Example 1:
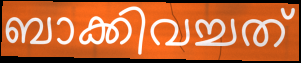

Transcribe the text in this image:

ബാക്കിവച്ചത്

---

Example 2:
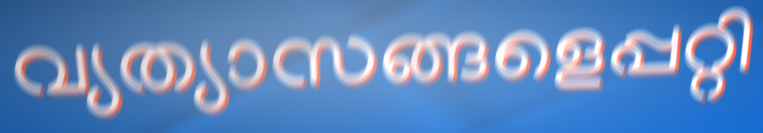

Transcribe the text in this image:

വ്യത്യാസങ്ങളെപ്പറ്റി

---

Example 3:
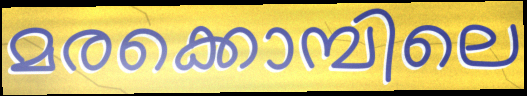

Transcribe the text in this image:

മരക്കൊമ്പിലെ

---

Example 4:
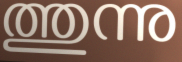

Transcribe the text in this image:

ത്തുന്നു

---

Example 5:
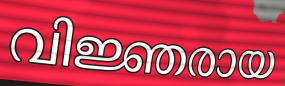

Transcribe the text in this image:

വിജ്ഞരായ